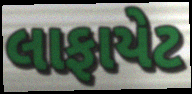
લાફાયેટ